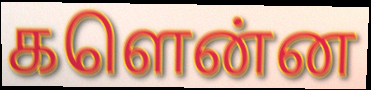
களென்ன